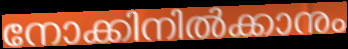
നോക്കിനിൽക്കാനും